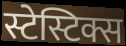
स्टेस्टिक्स